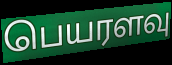
பெயரளவு